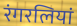
रंगरलियां